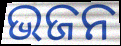
ଭଜନ